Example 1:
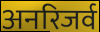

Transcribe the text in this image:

अनरिजर्व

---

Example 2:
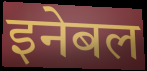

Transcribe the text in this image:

इनेबल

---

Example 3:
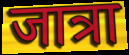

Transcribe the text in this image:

जात्रा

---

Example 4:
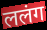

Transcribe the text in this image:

ललंग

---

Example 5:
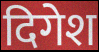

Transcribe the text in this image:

दिगेश